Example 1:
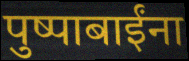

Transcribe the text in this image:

पुष्पाबाईंना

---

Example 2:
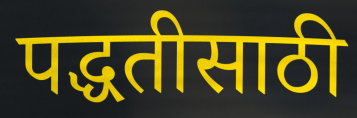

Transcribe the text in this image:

पद्धतीसाठी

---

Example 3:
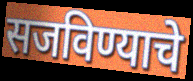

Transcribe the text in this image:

सजविण्याचे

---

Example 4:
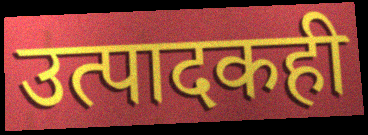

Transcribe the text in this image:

उत्पादकही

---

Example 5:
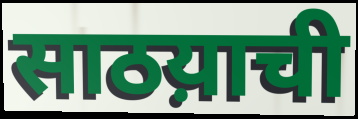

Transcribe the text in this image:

साठय़ाची